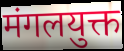
मंगलयुक्त